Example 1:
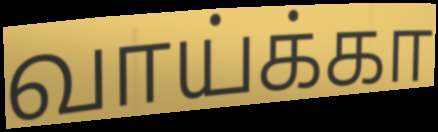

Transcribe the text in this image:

வாய்க்கா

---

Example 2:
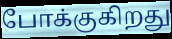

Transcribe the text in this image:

போக்குகிறது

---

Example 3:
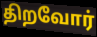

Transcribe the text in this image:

திறவோர்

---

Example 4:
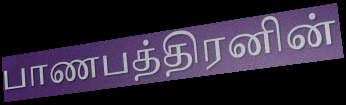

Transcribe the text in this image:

பாணபத்திரனின்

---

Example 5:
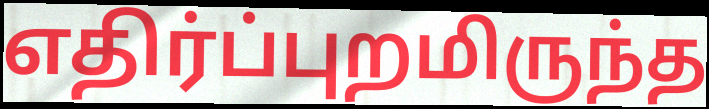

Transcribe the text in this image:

எதிர்ப்புறமிருந்த